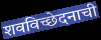
शवविच्छेदनाची